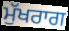
ਮੁੱਖਰਾਗ